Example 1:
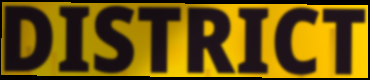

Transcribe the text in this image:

DISTRICT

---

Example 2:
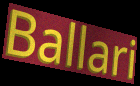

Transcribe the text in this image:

Ballari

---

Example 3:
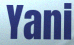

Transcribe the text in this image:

Yani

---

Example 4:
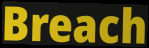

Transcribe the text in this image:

Breach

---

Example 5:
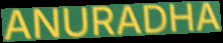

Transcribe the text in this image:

ANURADHA